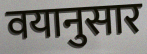
वयानुसार